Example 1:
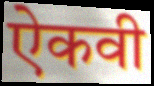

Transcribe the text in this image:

ऐकवी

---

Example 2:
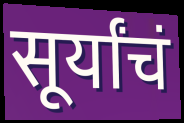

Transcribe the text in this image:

सूर्यांचं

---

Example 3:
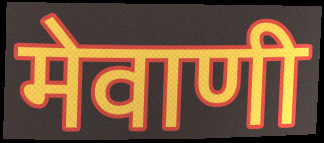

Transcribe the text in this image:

मेवाणी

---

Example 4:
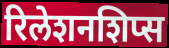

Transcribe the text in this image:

रिलेशनशिप्स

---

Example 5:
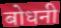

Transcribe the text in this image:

बोधनी